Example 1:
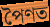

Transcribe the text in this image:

পৈণত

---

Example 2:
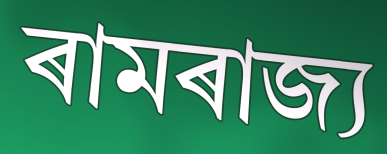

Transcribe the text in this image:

ৰামৰাজ্য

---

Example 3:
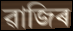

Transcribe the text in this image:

ৱাজিৰ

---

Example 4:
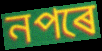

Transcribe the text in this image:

নপৰে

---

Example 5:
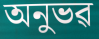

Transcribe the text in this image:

অনুভৱ